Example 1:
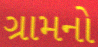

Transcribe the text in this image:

ગ્રામનો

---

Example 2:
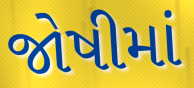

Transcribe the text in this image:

જોષીમાં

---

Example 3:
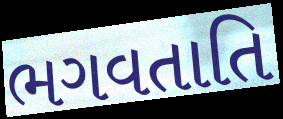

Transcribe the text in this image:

ભગવતાતિ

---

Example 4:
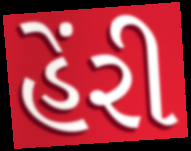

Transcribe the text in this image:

હેંરી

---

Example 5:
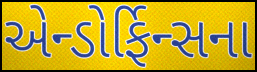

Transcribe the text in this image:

એન્ડોર્ફિન્સના